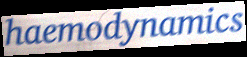
haemodynamics